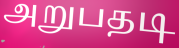
அறுபதடி